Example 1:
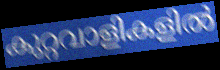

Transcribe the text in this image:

കുറ്റവാളികളിൽ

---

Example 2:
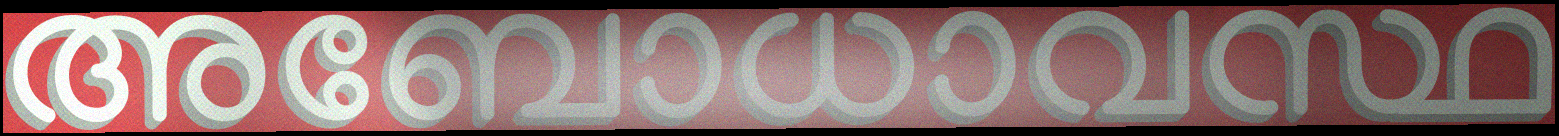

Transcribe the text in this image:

അബോധാവസ്ഥ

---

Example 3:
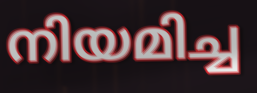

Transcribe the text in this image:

നിയമിച്ച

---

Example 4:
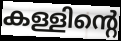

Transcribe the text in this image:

കള്ളിന്റെ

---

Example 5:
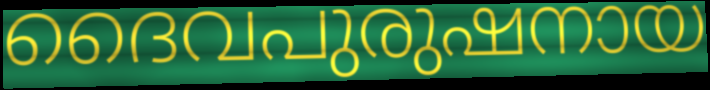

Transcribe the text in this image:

ദൈവപുരുഷനായ